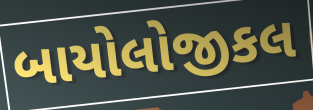
બાયોલોજીકલ